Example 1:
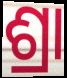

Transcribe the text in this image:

ଶ୍ରା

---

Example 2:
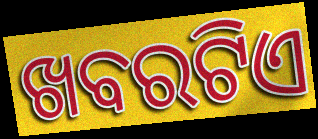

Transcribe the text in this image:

ଖବରଟିଏ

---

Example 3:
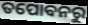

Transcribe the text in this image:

ତପୋବନରୁ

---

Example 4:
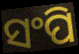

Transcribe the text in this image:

ସଂପି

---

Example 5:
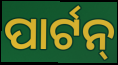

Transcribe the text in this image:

ପାର୍ଟନ୍